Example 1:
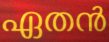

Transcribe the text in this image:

ഏതൻ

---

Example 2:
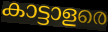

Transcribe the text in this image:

കാട്ടാളരെ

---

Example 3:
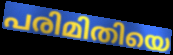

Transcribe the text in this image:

പരിമിതിയെ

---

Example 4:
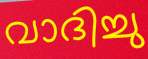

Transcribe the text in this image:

വാദിച്ചു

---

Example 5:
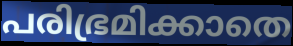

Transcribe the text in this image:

പരിഭ്രമിക്കാതെ